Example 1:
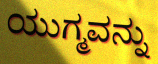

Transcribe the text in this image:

ಯುಗ್ಮವನ್ನು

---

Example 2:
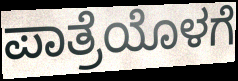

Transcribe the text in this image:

ಪಾತ್ರೆಯೊಳಗೆ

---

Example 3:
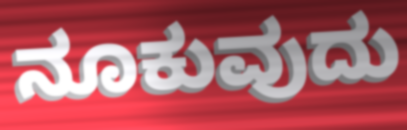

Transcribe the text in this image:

ನೂಕುವುದು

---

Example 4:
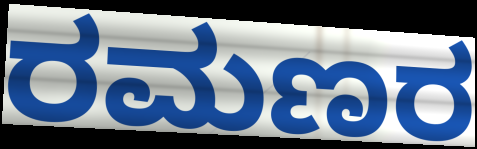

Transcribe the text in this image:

ರಮಣರ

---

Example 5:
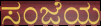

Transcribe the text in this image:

ಸಂಜೆಯ